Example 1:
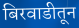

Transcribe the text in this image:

बिरवाडीतून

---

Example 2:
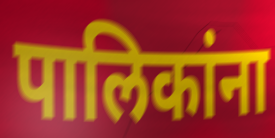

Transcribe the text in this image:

पालिकांना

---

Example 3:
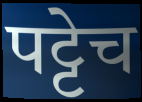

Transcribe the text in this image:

पट्टेच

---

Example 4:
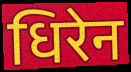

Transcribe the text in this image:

धिरेन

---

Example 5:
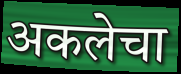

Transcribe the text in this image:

अकलेचा